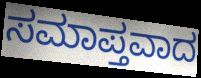
ಸಮಾಪ್ತವಾದ